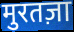
मुरतज़ा